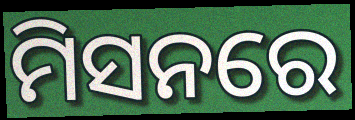
ମିସନରେ